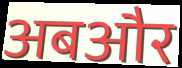
अबऔर